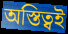
অস্তিত্বই